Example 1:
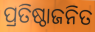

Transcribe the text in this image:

ପ୍ରତିଷ୍ଠାଜନିତ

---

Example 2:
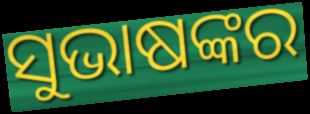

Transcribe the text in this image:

ସୁଭାଷଙ୍କର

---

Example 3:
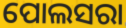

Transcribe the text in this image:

ପୋଲସରା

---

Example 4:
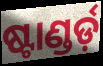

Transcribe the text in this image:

ଷ୍ଟାଣ୍ଡର୍ଡ଼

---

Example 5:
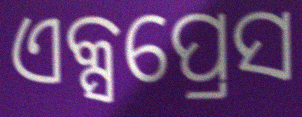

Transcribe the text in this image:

ଏକ୍ସପ୍ରେସ